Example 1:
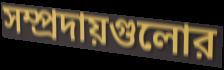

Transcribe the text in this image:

সম্প্রদায়গুলোর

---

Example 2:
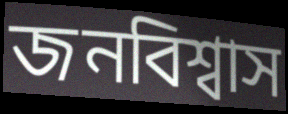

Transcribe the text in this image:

জনবিশ্বাস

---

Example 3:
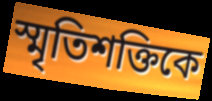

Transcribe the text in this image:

স্মৃতিশক্তিকে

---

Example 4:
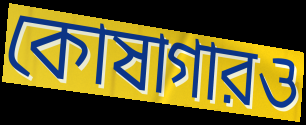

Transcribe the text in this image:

কোষাগারও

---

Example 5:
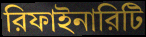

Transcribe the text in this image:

রিফাইনারিটি